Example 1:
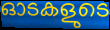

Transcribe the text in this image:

ഓടകളുടെ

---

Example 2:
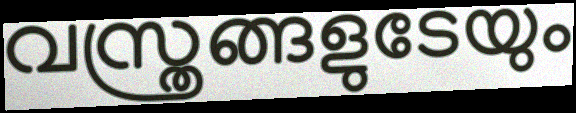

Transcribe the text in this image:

വസ്ത്രങ്ങളുടേയും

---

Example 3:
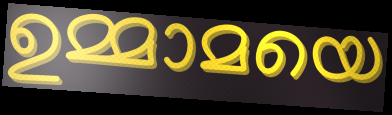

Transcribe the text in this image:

ഉമ്മാമയെ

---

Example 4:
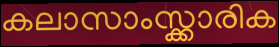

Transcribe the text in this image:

കലാസാംസ്ക്കാരിക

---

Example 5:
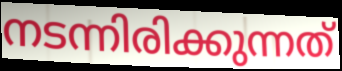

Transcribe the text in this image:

നടന്നിരിക്കുന്നത്